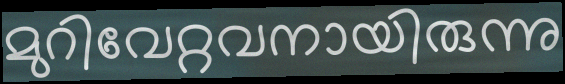
മുറിവേറ്റവനായിരുന്നു